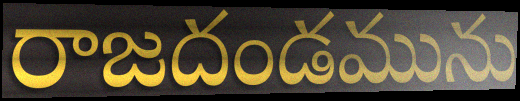
రాజదండమును